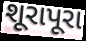
શૂરાપૂરા